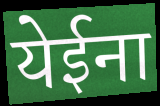
येईना